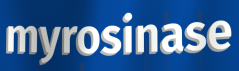
myrosinase